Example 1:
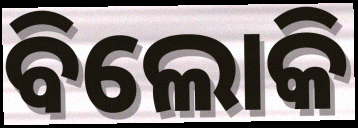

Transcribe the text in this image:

ବିଲୋକି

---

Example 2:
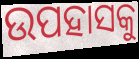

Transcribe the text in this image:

ଉପହାସକୁ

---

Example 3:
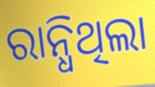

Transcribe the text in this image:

ରାନ୍ଧିଥିଲା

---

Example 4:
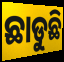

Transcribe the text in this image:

ଛାଡୁଛି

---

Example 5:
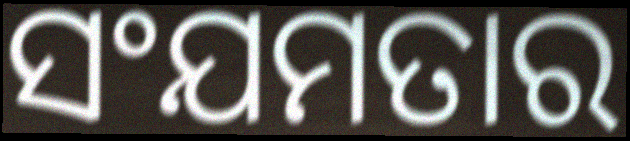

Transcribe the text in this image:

ସଂଯମତାର